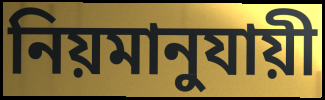
নিয়মানুযায়ী